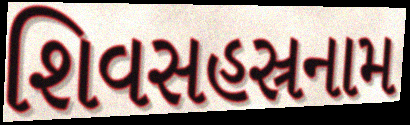
શિવસહસ્રનામ